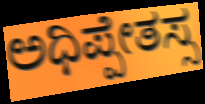
ಅಧಿಪ್ಪೇತಸ್ಸ